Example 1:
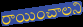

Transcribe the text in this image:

రాయించాలని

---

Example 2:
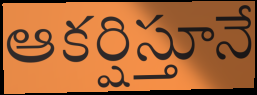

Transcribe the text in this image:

ఆకర్షిస్తూనే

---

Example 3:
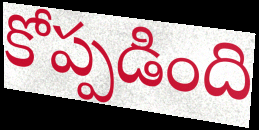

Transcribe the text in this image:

కోప్పడింది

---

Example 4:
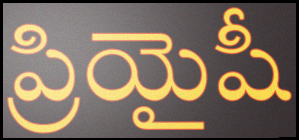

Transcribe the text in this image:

ప్రియైషీ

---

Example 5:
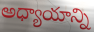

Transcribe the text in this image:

అధ్యాయాన్ని